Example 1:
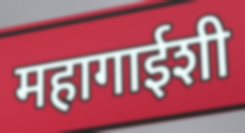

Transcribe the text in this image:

महागाईशी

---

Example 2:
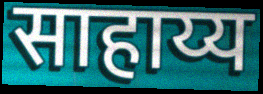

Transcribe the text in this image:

साहाय्य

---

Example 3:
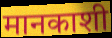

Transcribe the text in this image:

मानकाशी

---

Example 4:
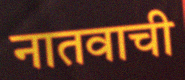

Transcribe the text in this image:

नातवाची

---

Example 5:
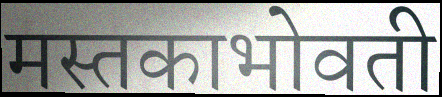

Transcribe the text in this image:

मस्तकाभोवती